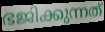
ഭജിക്കുന്നത്